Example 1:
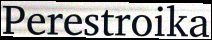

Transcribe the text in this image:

Perestroika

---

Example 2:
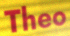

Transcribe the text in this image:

Theo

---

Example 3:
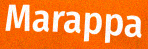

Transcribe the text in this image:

Marappa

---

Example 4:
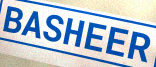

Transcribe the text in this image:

BASHEER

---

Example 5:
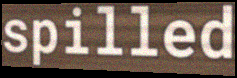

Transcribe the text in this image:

spilled